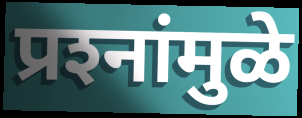
प्रश्‍नांमुळे